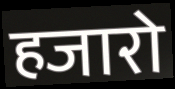
हजारो